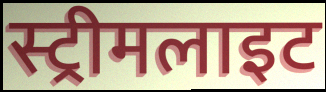
स्ट्रीमलाइट